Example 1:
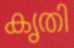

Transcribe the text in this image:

കൃതി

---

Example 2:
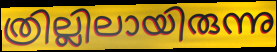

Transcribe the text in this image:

ത്രില്ലിലായിരുന്നു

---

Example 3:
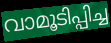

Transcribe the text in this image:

വാമൂടിപ്പിച്ച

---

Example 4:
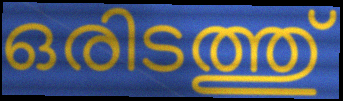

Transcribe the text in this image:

ഒരിടത്തു്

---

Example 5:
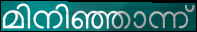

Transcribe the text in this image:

മിനിഞ്ഞാന്ന്